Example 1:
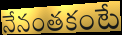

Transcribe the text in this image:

నేనంతకంటే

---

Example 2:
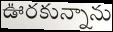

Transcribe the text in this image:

ఊరకున్నాను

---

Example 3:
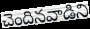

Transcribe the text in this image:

చెందినవాడిని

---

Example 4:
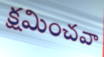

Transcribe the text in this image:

క్షమించవా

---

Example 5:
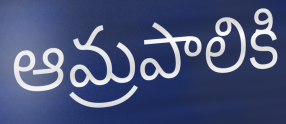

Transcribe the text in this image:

ఆమ్రపాలికి